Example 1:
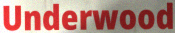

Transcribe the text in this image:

Underwood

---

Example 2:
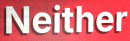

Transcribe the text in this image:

Neither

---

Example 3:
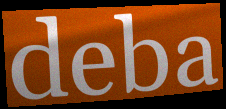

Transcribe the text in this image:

deba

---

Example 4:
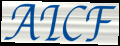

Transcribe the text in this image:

AICF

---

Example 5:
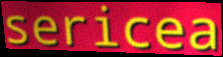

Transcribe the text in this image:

sericea